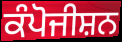
ਕੰਪੋਜੀਸ਼ਨ